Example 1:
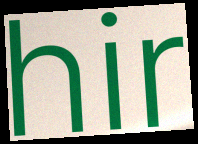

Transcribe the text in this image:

hir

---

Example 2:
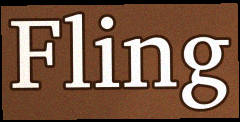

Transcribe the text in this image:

Fling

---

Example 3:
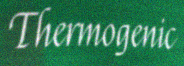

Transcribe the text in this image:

Thermogenic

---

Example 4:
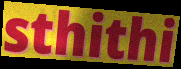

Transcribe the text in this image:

sthithi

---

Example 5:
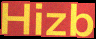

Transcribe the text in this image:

Hizb